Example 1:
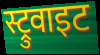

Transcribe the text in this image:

स्ट्रुवाइट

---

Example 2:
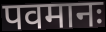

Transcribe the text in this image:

पवमानः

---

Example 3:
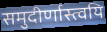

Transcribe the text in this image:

समुदीर्णास्त्वयि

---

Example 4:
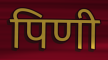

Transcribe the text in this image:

पिणी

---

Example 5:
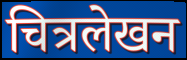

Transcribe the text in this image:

चित्रलेखन